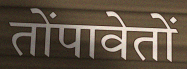
तोंपावेतों